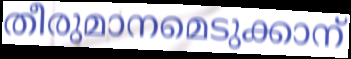
തീരുമാനമെടുക്കാന്